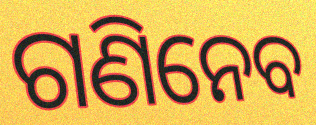
ଗଣିନେବ